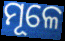
ମୂଳେ